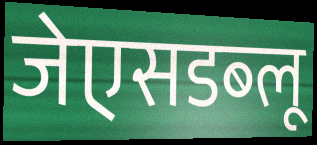
जेएसडब्‍लू